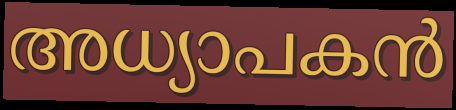
അധ്യാപകൻ